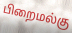
பிறைமல்கு